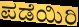
ಪಡೆಯಿರಿ